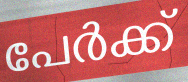
പേർക്ക്